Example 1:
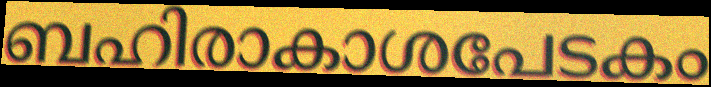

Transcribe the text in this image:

ബഹിരാകാശപേടകം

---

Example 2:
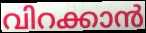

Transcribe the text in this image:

വിറക്കാൻ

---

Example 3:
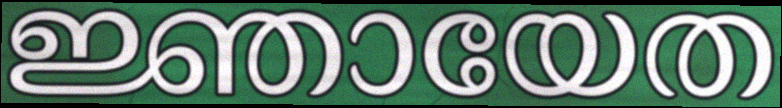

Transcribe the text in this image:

ജ്ഞായേത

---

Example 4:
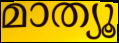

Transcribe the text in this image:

മാത്യൂ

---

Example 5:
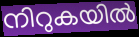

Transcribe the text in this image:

നിറുകയിൽ